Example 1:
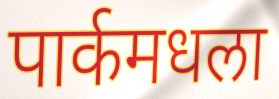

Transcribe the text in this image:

पार्कमधला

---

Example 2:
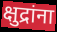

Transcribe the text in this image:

क्षुद्रांना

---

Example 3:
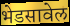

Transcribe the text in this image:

भेडसावेल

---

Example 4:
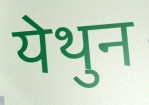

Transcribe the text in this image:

येथुन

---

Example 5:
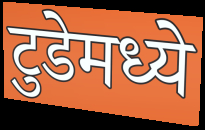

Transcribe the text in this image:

टुडेमध्ये